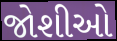
જોશીઓ